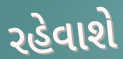
રહેવાશે